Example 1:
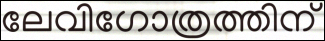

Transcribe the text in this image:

ലേവിഗോത്രത്തിന്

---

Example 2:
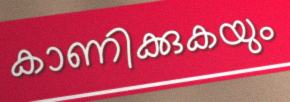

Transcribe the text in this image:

കാണിക്കുകയും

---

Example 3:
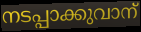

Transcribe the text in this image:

നടപ്പാക്കുവാന്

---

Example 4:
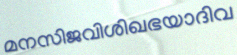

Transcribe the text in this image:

മനസിജവിശിഖഭയാദിവ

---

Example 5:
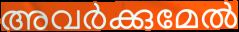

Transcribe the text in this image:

അവർക്കുമേൽ